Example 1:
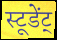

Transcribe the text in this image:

स्टूडेंट्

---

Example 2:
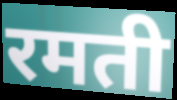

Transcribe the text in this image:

रमती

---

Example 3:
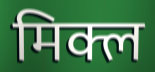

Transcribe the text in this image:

मिक्ल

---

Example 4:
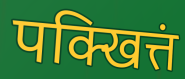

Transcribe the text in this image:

पक्खित्तं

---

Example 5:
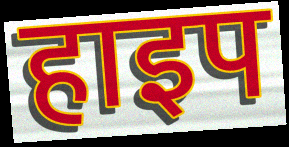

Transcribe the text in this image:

हाइप